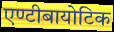
एण्टीबायोटिक